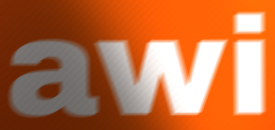
awi